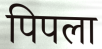
पिपला